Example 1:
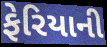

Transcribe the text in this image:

ફેરિયાની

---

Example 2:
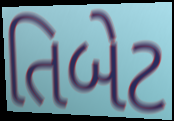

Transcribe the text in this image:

તિબેટ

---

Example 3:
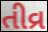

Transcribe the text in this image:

તીવ્ર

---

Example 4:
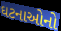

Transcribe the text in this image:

ઘટનાઓનો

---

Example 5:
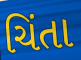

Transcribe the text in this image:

ચિંતા